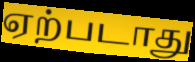
ஏற்படாது